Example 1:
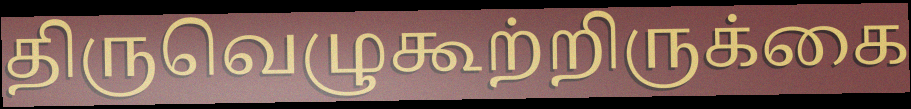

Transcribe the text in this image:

திருவெழுகூற்றிருக்கை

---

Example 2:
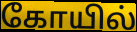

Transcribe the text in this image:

கோயில்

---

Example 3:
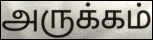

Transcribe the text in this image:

அருக்கம்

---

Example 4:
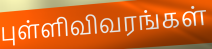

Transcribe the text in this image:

புள்ளிவிவரங்கள்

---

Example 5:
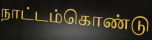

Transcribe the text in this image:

நாட்டம்கொண்டு